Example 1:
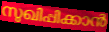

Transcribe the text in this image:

സുഖിപ്പിക്കാൻ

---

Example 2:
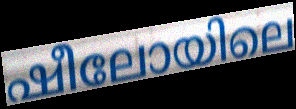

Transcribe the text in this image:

ഷീലോയിലെ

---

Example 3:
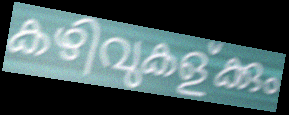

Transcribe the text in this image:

കഴിവുകള്ക്കും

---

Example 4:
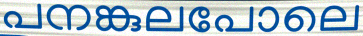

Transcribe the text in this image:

പനങ്കുലപോലെ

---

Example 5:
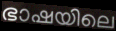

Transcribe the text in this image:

ഭാഷയിലെ